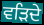
ਵੜਿਦੇ